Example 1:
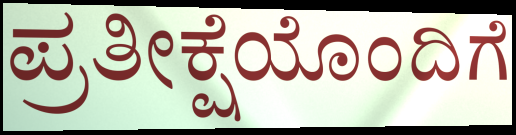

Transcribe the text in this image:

ಪ್ರತೀಕ್ಷೆಯೊಂದಿಗೆ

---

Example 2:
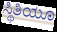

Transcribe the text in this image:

ಸ್ಥಿತಿಯೂ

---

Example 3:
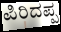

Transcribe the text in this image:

ಪಿರಿದಪ್ಪ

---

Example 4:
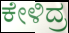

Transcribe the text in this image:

ಕೇಳಿದ್ರ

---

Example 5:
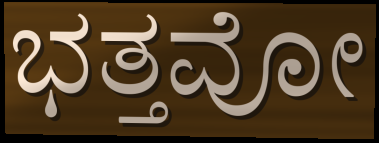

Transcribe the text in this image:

ಭತ್ತವೋ